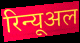
रिन्यूअल